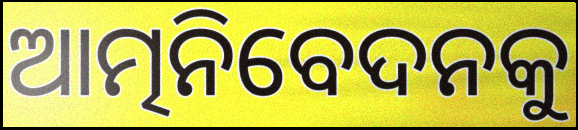
ଆତ୍ମନିବେଦନକୁ